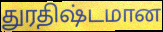
துரதிஷ்டமான